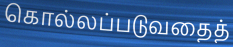
கொல்லப்படுவதைத்